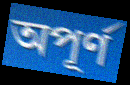
অপূৰ্ণ